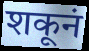
शकूनं